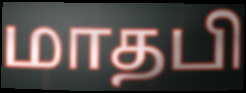
மாதபி